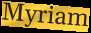
Myriam